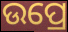
ଉପ୍ରେ